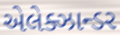
એલેક્ઝાન્ડર